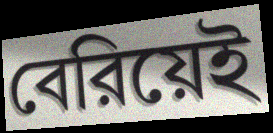
বেরিয়েই